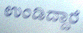
ಉಂಡಿದ್ದಾರೆ